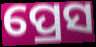
ପ୍ରେସ